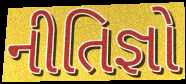
નીતિજ્ઞો